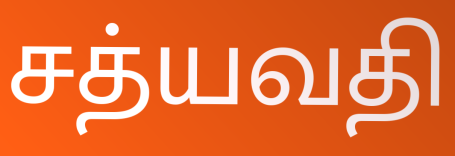
சத்யவதி